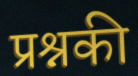
प्रश्नकी